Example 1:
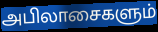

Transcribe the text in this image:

அபிலாசைகளும்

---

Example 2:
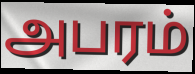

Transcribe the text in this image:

அபரம்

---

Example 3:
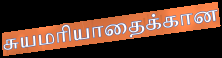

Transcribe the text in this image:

சுயமரியாதைக்கான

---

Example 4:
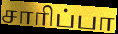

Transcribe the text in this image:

சாரிப்பா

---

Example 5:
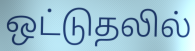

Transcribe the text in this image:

ஒட்டுதலில்